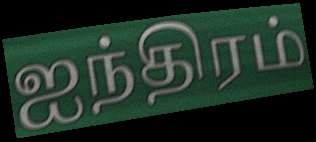
ஐந்திரம்